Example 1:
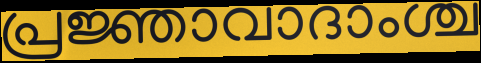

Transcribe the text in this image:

പ്രജ്ഞാവാദാംശ്ച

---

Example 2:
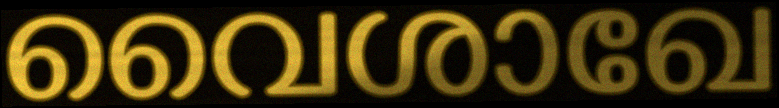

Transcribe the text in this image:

വൈശാഖേ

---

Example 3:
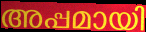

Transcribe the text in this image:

അപ്പമായി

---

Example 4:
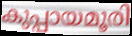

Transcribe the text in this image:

കുപ്പായമൂരി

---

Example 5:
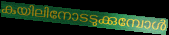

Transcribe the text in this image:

കുയിലിനോടടുക്കുമ്പോൾ